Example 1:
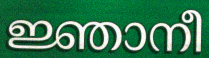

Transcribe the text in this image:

ജ്ഞാനീ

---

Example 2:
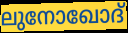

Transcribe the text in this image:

ലുനോഖോദ്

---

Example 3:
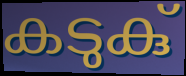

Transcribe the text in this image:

കടുകു്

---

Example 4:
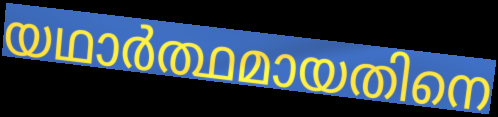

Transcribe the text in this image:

യഥാർത്ഥമായതിനെ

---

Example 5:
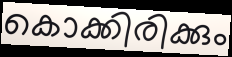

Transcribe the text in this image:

കൊക്കിരിക്കും